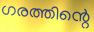
ഗരത്തിന്റെ